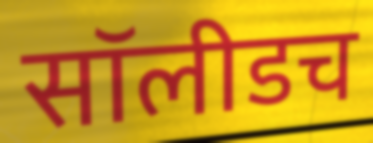
सॉलीडच